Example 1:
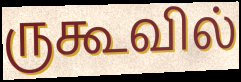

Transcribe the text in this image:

ருகூவில்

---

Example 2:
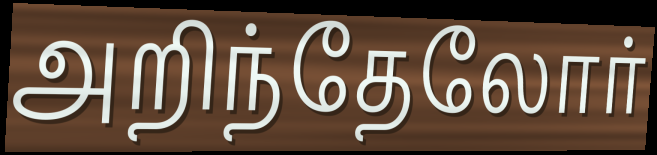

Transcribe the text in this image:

அறிந்தேலோர்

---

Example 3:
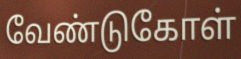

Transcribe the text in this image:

வேண்டுகோள்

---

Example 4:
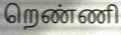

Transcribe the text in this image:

றெண்ணி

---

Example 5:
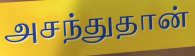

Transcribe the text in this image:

அசந்துதான்